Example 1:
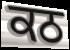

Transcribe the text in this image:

ਕਠ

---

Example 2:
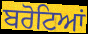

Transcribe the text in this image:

ਬਰੋਟਿਆਂ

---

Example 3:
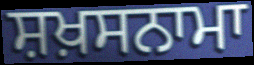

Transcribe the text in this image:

ਸ਼ਖ਼ਸਨਾਮਾ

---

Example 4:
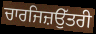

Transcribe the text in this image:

ਚਾਰਜਿਜ਼ਉੱਤਰੀ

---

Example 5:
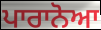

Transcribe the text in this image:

ਪਾਰਾਨੋਆ